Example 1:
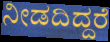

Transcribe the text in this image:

ನೀಡದಿದ್ದರೆ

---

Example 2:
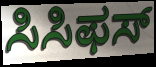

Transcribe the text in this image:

ಸಿಸಿಫಸ್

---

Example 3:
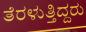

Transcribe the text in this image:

ತೆರಳುತ್ತಿದ್ದರು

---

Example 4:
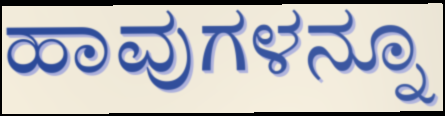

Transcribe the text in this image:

ಹಾವುಗಳನ್ನೂ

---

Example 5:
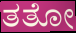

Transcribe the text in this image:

ತತೋ